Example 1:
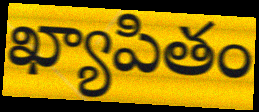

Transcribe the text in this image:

ఖ్యాపితం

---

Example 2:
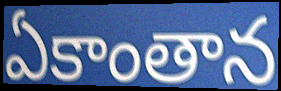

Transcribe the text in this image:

ఏకాంతాన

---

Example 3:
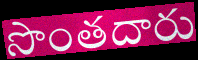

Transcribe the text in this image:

సొంతదారు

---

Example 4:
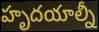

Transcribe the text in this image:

హృదయాల్నీ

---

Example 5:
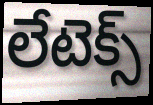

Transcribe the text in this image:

లేటెక్స్